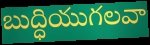
బుద్ధియుగలవా